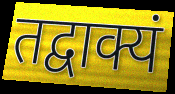
तद्वाक्यं